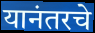
यानंतरचे